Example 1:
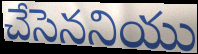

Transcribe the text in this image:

చేసెననియు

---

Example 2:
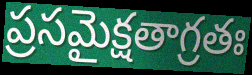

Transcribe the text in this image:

ప్రసమైక్షతాగ్రతః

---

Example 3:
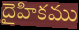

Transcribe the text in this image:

దైహికము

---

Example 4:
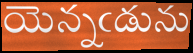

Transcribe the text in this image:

యెన్నఁడును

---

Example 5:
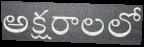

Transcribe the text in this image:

అక్షరాలలో